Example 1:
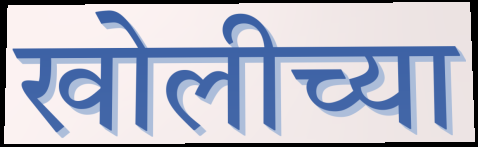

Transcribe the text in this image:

खोलीच्या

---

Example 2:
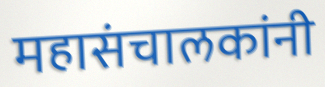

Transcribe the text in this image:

महासंचालकांनी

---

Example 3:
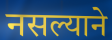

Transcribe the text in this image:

नसल्‍याने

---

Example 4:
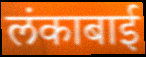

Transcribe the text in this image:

लंकाबाई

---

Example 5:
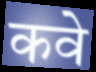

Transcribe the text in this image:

कवे